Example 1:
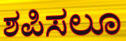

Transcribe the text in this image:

ಶಪಿಸಲೂ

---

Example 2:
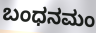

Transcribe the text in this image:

ಬಂಧನಮಂ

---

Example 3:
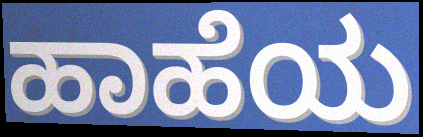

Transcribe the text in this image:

ಹಾಹೆಯ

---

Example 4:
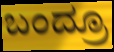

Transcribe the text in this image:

ಬಂದ್ರೂ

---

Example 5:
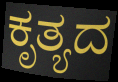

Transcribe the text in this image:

ಕೃತ್ಯದ